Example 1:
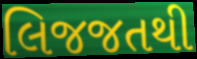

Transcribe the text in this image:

લિજજતથી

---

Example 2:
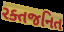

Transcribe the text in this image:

રક્તજનિત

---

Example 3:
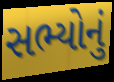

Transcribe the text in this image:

સભ્યોનું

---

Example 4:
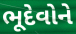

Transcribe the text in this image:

ભૂદેવોને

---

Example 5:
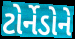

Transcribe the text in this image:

ટોર્નેડોને